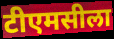
टीएमसीला